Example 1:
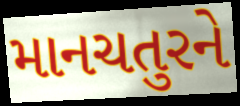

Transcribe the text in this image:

માનચતુરને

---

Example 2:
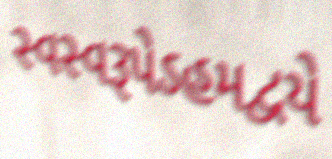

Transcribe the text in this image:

સ્વસ્વરૂપેઽહમદ્વયે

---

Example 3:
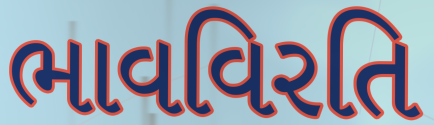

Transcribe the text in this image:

ભાવવિરતિ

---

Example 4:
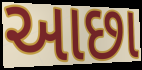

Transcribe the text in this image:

આછા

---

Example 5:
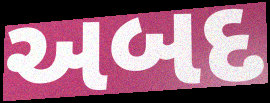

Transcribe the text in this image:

અબદ